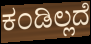
ಕಂಡಿಲ್ಲದೆ